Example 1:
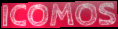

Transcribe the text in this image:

ICOMOS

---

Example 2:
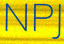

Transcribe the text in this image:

NPJ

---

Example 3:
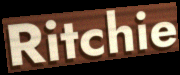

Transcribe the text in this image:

Ritchie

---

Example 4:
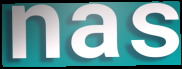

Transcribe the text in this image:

nas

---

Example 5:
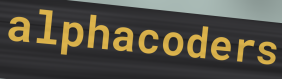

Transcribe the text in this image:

alphacoders